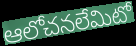
ఆలోచనలేమిటో